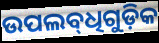
ଉପଲବ୍‌ଧିଗୁଡ଼ିକ